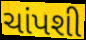
ચાંપશી